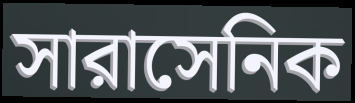
সারাসেনিক